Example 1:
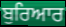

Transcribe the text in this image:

ਬੁਰਿਆਰ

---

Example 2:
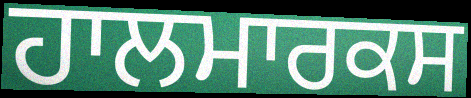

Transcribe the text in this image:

ਹਾਲਮਾਰਕਸ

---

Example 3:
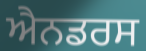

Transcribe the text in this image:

ਐਨਡਰਸ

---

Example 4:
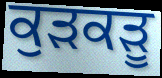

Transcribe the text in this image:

ਕੁੜਕੜੂ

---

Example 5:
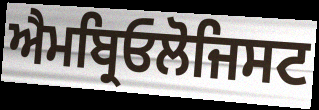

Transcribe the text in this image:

ਐਮਬ੍ਰਿਓਲੋਜਿਸਟ